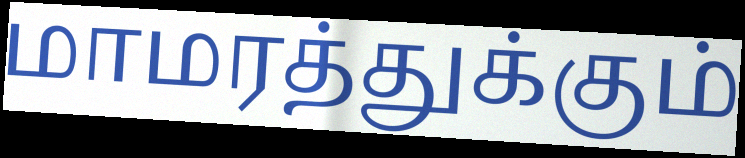
மாமரத்துக்கும்